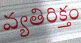
వ్యతిరిక్తం